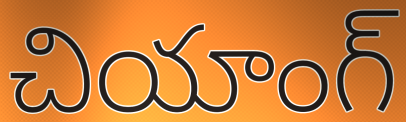
చియాంగ్